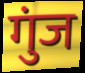
गुंज